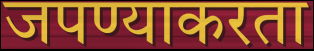
जपण्याकरता